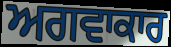
ਅਗਵਾਕਾਰ